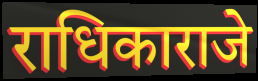
राधिकाराजे